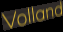
Volland